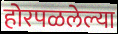
होरपळलेल्या